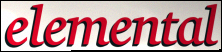
elemental